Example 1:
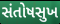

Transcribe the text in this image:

સંતોષસુખ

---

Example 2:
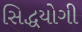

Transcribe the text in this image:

સિદ્ધયોગી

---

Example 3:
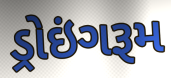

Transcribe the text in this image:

ડ્રોઇંગરૂમ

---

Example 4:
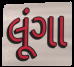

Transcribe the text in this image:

લૂંગા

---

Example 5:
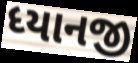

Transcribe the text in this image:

ધ્યાનજી